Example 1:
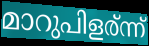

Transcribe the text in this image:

മാറുപിളര്ന്ന്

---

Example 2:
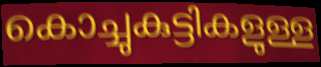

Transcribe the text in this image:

കൊച്ചുകുട്ടികളുള്ള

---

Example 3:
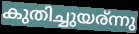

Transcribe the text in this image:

കുതിച്ചുയര്ന്നു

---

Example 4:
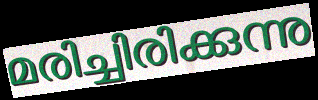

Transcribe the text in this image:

മരിച്ചിരിക്കുന്നു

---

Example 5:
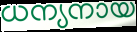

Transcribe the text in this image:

ധന്യനായ